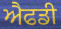
ਐਫਡੀ